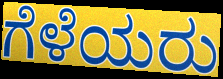
ಗೆಳೆಯರು